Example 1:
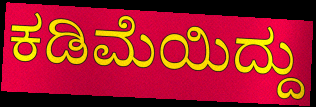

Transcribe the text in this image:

ಕಡಿಮೆಯಿದ್ದು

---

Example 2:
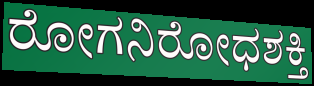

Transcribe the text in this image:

ರೋಗನಿರೋಧಶಕ್ತಿ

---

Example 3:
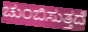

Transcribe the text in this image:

ಚುಂಬಿಸುತ್ತದೆ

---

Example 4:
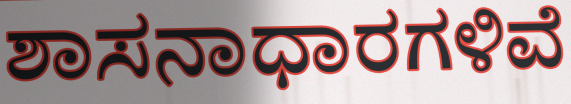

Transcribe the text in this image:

ಶಾಸನಾಧಾರಗಳಿವೆ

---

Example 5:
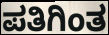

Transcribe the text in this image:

ಪತಿಗಿಂತ